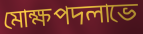
মোক্ষপদলাভে